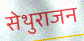
सेथुराजन